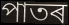
পাতৰ